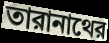
তারানাথের